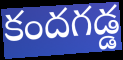
కందగడ్డ